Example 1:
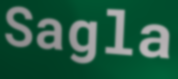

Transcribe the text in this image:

Sagla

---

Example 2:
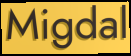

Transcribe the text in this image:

Migdal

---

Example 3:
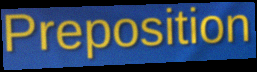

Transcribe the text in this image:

Preposition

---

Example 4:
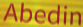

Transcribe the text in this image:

Abedin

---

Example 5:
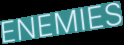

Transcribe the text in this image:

ENEMIES